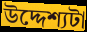
উদ্দেশ্যটা